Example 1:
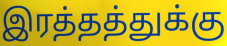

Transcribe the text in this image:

இரத்தத்துக்கு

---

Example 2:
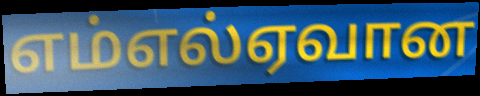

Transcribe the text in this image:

எம்எல்ஏவான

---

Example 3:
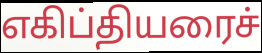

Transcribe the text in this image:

எகிப்தியரைச்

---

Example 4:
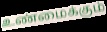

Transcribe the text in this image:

உண்மைக்கும்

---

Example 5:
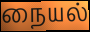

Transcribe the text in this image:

நையல்